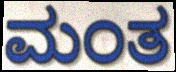
ಮಂತ